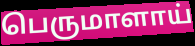
பெருமாளாய்